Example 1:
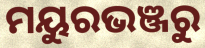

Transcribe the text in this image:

ମୟୁରଭଞ୍ଜରୁ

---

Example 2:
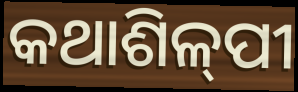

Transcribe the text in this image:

କଥାଶିଳ୍‌ପୀ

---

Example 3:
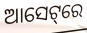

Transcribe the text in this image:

ଆସେଟ୍‌ରେ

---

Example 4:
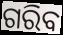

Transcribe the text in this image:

ଗରିବ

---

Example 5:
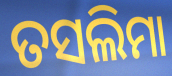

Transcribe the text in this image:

ତସଲିମା